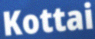
Kottai